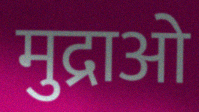
मुद्राओ